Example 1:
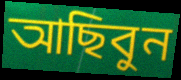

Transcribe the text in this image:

আছিবুন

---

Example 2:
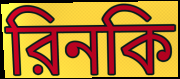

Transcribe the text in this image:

রিনকি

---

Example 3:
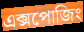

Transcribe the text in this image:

এক্সপোজিং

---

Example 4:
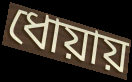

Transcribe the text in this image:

ধোয়ায়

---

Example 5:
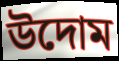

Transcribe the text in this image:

উদোম